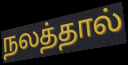
நலத்தால்